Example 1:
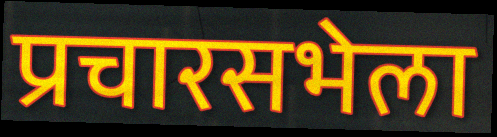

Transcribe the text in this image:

प्रचारसभेला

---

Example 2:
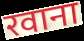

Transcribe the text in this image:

रवाना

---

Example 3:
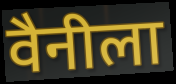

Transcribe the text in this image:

वैनीला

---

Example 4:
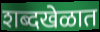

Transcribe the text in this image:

शब्दखेळात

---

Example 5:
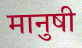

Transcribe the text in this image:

मानुषी